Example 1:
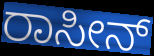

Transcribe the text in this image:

ರಾಸೀನ್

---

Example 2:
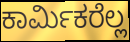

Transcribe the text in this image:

ಕಾರ್ಮಿಕರೆಲ್ಲ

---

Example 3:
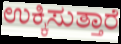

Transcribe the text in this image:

ಉಕ್ಕಿಸುತ್ತಾರೆ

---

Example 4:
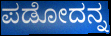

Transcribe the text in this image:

ಪಡೋದನ್ನ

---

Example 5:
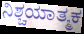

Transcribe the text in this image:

ನಿಶ್ಚಯಾತ್ಮಕ